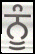
ਨੂੰ